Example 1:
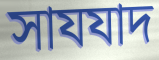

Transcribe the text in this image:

সাযযাদ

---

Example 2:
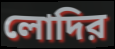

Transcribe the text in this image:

লোদির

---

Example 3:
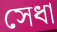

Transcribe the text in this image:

সেধা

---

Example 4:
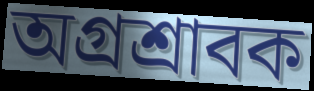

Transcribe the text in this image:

অগ্রশ্রাবক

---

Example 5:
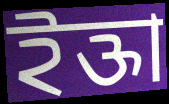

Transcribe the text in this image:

ইক্তা